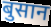
बुसान